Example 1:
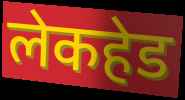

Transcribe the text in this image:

लेकहेड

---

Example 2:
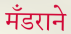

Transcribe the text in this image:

मँडराने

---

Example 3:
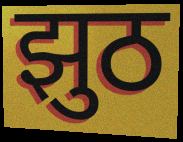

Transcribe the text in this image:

झुठ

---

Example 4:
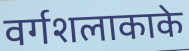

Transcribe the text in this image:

वर्गशलाकाके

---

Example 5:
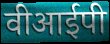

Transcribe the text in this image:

वीआईपी